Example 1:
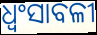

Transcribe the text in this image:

ଧ୍ୱଂସାବଳୀ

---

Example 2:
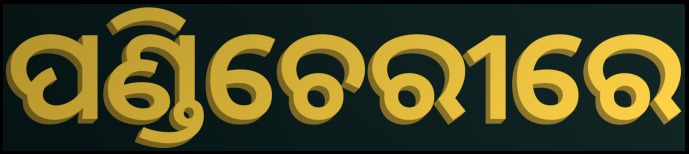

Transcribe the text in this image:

ପଣ୍ଡିଚେରୀରେ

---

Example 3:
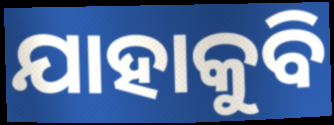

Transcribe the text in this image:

ଯାହାକୁବି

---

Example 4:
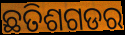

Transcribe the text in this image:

ଛତିଶଗଡର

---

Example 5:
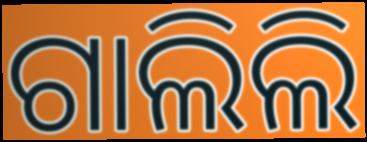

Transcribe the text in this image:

ଗାଲିଲି